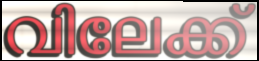
വിലേക്ക്